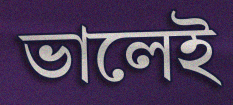
ভালেই